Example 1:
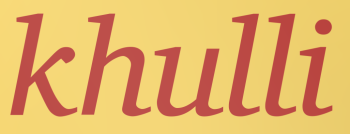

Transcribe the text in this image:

khulli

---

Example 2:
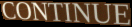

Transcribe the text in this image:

CONTINUE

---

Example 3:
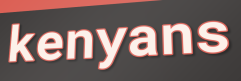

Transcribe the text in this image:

kenyans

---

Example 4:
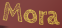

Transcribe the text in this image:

Mora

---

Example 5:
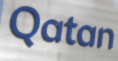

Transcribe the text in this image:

Qatan